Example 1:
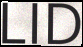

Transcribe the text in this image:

LID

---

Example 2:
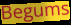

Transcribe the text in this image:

Begums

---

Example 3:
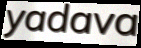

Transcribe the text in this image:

yadava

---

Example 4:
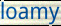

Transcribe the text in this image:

loamy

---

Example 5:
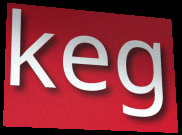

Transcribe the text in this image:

keg